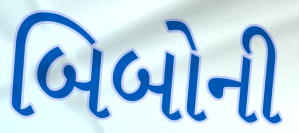
બિબોની